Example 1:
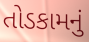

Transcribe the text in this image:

તોડકામનું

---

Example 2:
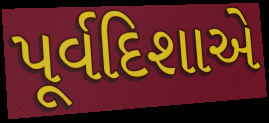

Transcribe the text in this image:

પૂર્વદિશાએ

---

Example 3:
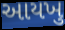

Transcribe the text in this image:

આયખુ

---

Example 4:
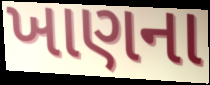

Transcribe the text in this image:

ખાણના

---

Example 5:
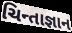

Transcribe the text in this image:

ચિન્તાજ્ઞાન